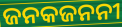
ଜନକଜନନୀ